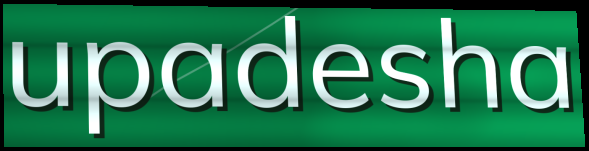
upadesha